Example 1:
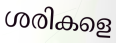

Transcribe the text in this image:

ശരികളെ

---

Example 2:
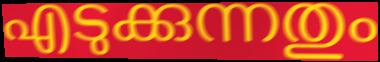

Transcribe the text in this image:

എടുക്കുന്നതും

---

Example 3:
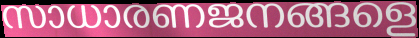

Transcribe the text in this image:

സാധാരണജനങ്ങളെ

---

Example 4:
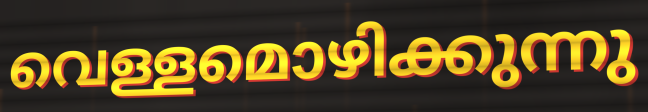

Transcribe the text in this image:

വെള്ളമൊഴിക്കുന്നു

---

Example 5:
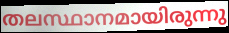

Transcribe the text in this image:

തലസ്ഥാനമായിരുന്നു